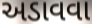
અડાવવા